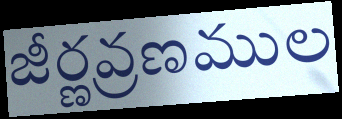
జీర్ణవ్రణముల